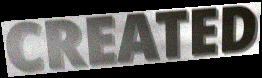
CREATED